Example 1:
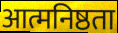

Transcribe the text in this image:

आत्मनिष्ठता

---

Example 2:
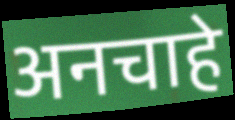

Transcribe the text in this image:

अनचाहे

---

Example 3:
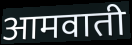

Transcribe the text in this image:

आमवाती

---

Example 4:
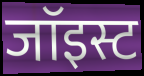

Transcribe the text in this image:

जॉइस्ट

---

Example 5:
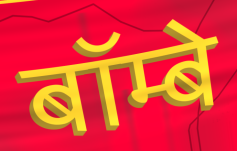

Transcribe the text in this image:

बॉम्‍बे